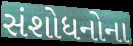
સંશોધનોના